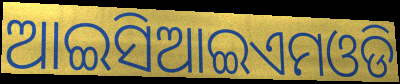
ଆଇସିଆଇଏମଓଡି